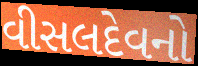
વીસલદેવનો